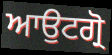
ਆਉਟਗ੍ਰੋ